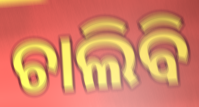
ଚାଲିବି